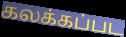
கலக்கப்பட